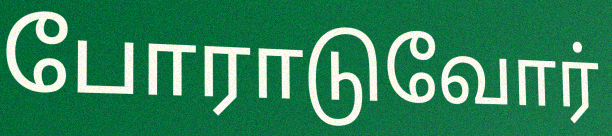
போராடுவோர்